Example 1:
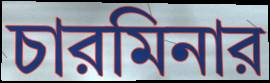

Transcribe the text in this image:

চারমিনার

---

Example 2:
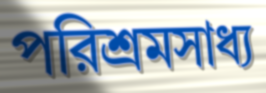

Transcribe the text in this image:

পরিশ্রমসাধ্য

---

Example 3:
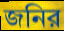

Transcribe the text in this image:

জনির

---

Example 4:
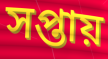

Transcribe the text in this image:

সপ্তায়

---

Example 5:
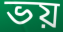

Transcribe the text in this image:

ভয়